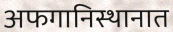
अफगानिस्थानात